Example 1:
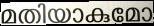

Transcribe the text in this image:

മതിയാകുമോ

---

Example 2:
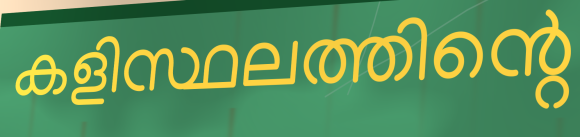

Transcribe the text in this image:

കളിസ്ഥലത്തിന്റെ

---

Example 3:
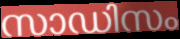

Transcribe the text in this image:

സാഡിസം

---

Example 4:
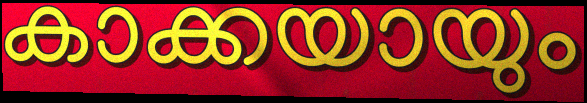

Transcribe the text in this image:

കാക്കയായും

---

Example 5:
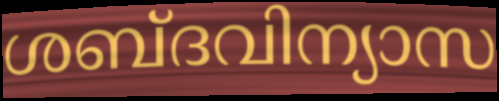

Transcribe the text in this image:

ശബ്ദവിന്യാസ